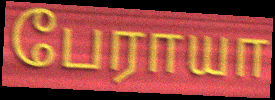
பேராயா